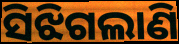
ସିଝିଗଲାଣି